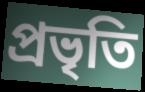
প্ৰভৃতি